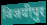
विजयीपुर